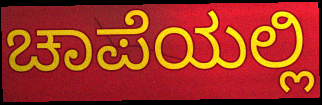
ಚಾಪೆಯಲ್ಲಿ